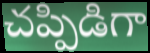
చప్పిడిగా